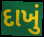
દાખું